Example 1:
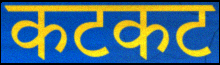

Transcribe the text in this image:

कटकट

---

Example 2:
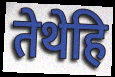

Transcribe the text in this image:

तेथेहि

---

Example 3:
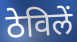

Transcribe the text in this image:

ठेविलें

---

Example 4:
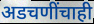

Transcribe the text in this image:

अडचणींचाही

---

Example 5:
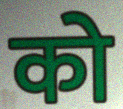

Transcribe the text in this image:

को